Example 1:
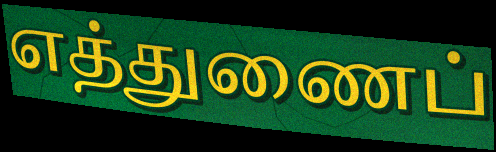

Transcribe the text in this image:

எத்துணைப்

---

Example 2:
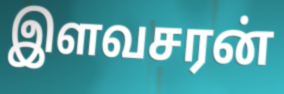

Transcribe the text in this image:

இளவசரன்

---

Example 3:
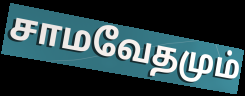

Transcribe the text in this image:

சாமவேதமும்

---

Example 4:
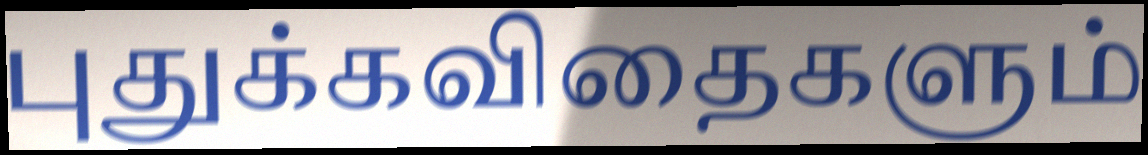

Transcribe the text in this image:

புதுக்கவிதைகளும்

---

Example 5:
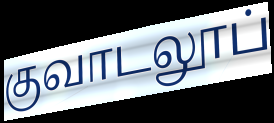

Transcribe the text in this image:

குவாடலூப்